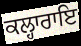
ਕਲ੍ਹਾਰਾਇ